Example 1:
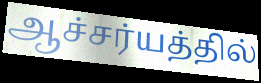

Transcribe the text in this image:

ஆச்சர்யத்தில்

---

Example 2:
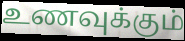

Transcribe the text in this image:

உணவுக்கும்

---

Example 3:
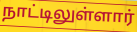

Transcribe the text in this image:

நாட்டிலுள்ளார்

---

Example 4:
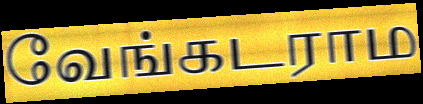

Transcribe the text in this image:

வேங்கடராம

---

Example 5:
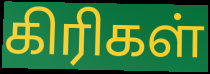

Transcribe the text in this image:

கிரிகள்